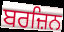
ਬਰਜ਼ਿਨ